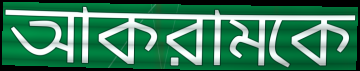
আকরামকে